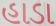
હાડા